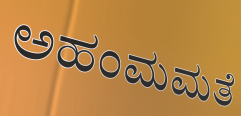
ಅಹಂಮಮತೆ